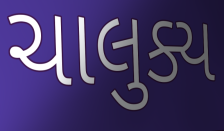
ચાલુક્ય